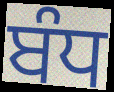
ਬੰਧ